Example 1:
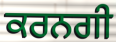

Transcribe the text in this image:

ਕਰਨਗੀ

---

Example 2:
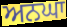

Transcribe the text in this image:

ਅਨਘਾ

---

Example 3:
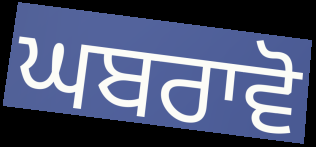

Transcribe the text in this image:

ਘਬਰਾਵੋ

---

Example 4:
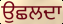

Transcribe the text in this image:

ਉਛਲਦਾ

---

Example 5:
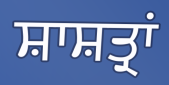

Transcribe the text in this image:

ਸ਼ਾਸ਼ਤ੍ਰਾਂ